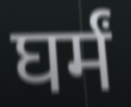
घर्मं